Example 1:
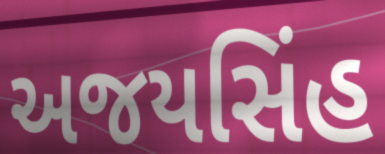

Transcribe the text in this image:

અજયસિંહ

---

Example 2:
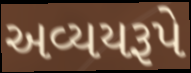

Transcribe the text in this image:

અવ્યયરૂપે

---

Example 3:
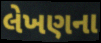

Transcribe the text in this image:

લેખણના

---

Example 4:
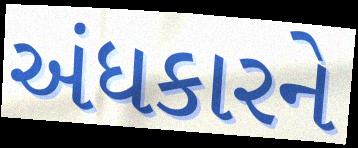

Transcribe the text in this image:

અંધકારને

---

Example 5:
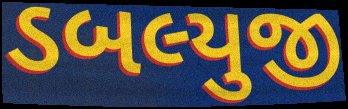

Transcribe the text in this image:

ડબલ્યુજી